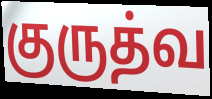
குருத்வ